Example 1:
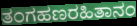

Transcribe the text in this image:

ತಂಗಹಣರಹಿತಾನಂ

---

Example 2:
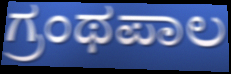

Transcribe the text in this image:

ಗ್ರಂಥಪಾಲ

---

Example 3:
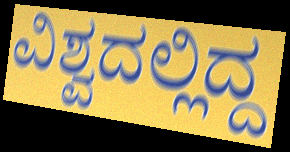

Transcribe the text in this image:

ವಿಶ್ವದಲ್ಲಿದ್ದ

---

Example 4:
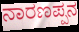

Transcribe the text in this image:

ನಾರಣಪ್ಪನ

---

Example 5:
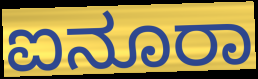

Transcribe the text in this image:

ಐನೂರಾ